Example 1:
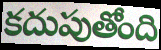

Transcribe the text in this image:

కదుపుతోంది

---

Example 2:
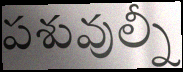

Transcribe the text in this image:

పశువుల్నీ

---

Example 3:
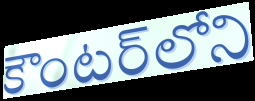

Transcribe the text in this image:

కౌంటర్‌లోని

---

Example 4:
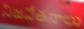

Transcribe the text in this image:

నిజవేతనాలు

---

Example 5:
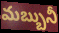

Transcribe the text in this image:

మబ్బునీ